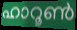
ഹാറൂൺ